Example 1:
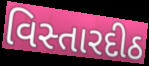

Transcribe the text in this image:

વિસ્તારદીઠ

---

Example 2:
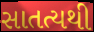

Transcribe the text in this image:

સાતત્યથી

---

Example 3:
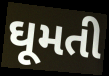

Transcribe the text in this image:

ઘૂમતી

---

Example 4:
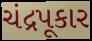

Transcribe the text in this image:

ચંદ્રપૂકાર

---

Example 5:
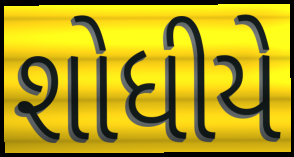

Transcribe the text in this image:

શોધીયે